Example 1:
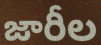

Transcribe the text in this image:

జారీల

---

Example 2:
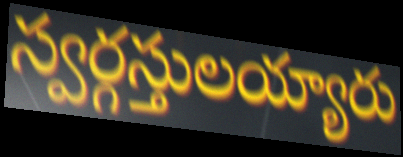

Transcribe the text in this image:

స్వర్గస్తులయ్యారు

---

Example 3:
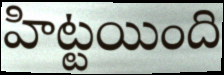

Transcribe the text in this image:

హిట్టయింది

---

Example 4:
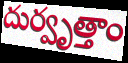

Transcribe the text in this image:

దుర్వృత్తాం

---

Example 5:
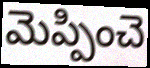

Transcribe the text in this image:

మెప్పించె